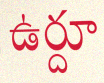
ఉర్దూ